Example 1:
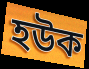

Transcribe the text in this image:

হউক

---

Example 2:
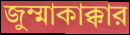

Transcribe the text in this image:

জুম্মাকাক্কার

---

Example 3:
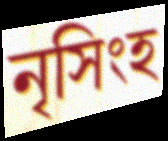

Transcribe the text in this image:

নৃসিংহ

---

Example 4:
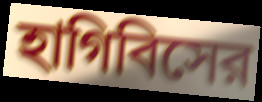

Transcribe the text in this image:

হাগিবিসের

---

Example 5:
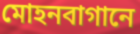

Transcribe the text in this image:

মোহনবাগানে